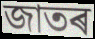
জাতৰ